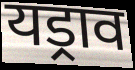
यड्राव